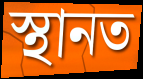
স্থানত